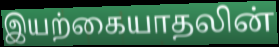
இயற்கையாதலின்